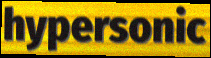
hypersonic